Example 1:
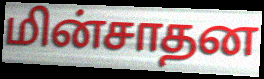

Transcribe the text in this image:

மின்சாதன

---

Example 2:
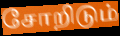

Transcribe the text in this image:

சோறிடும்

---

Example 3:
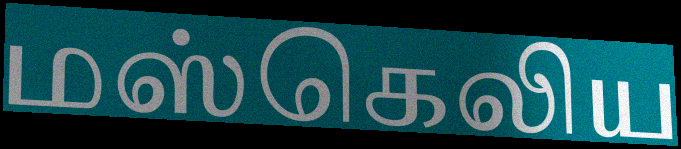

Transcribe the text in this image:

மஸ்கெலிய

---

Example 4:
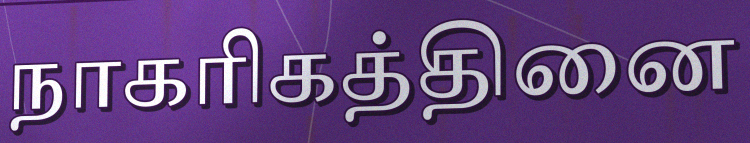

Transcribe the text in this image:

நாகரிகத்தினை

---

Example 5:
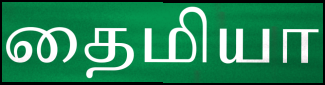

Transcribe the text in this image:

தைமியா